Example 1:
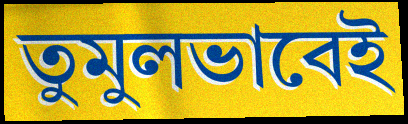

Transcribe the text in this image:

তুমুলভাবেই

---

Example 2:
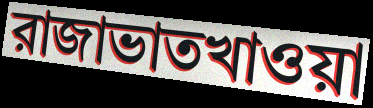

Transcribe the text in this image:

রাজাভাতখাওয়া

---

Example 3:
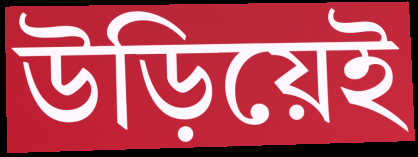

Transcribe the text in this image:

উড়িয়েই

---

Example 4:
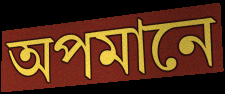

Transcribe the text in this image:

অপমানে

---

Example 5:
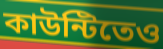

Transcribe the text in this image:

কাউন্টিতেও